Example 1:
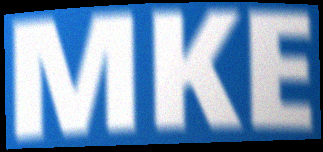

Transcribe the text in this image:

MKE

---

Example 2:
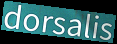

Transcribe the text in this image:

dorsalis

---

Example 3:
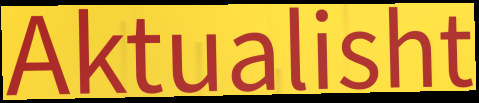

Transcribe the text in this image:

Aktualisht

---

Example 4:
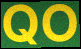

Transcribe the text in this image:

QO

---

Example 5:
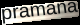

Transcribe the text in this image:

pramana